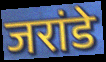
जरांडे